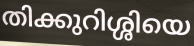
തിക്കുറിശ്ശിയെ